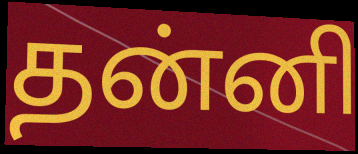
தன்னி